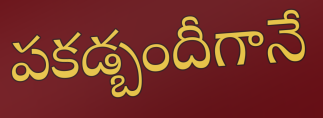
పకడ్బందీగానే